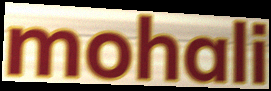
mohali